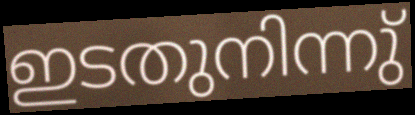
ഇടതുനിന്നു്